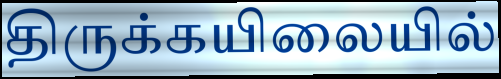
திருக்கயிலையில்